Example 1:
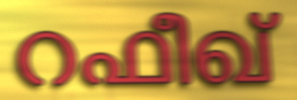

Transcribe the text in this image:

റഫീഖ്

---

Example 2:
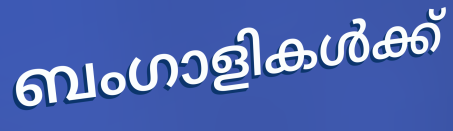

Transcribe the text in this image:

ബംഗാളികൾക്ക്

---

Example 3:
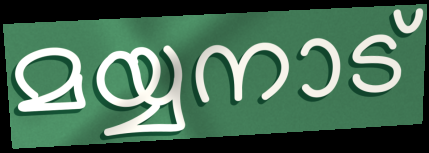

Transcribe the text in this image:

മയ്യനാട്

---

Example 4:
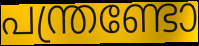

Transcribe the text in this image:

പന്ത്രണ്ടോ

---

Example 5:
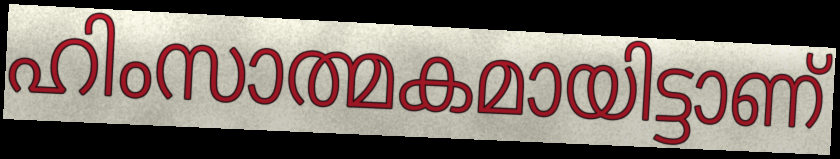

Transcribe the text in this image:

ഹിംസാത്മകമായിട്ടാണ്